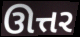
ઊત્તર